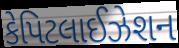
કેપિટલાઈઝેશન